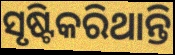
ସୃଷ୍ଟିକରିଥାନ୍ତି